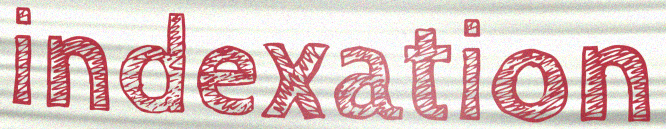
indexation